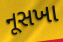
નૂસખા